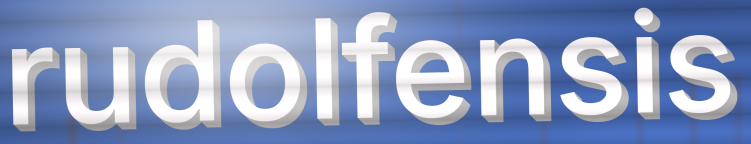
rudolfensis